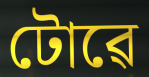
টোৱে